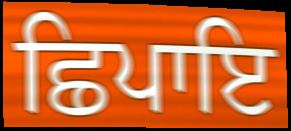
ਛਿਪਾਇ